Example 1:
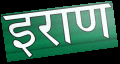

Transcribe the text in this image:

इराण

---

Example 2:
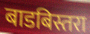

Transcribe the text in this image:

बाडबिस्तरा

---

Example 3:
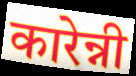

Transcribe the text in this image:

कारेन्नी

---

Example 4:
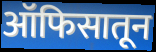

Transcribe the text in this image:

ऑफिसातून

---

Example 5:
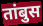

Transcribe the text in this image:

तांबुस